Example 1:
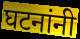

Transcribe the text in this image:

घटनांनी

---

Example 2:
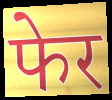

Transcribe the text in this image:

फेर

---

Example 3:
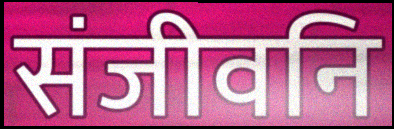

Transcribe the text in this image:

संजीवनि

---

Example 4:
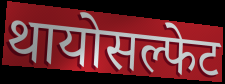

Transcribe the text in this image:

थायोसल्फेट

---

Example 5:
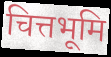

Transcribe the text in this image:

चित्तभूमि